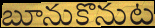
బూనుకొనుట